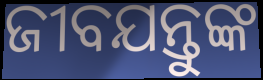
ଜୀବଯନ୍ତୁଙ୍କ